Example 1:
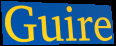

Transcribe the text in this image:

Guire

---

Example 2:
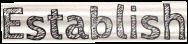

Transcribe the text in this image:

Establish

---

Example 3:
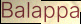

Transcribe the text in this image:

Balappa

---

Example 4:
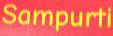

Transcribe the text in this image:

Sampurti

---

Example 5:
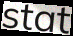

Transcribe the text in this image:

stat